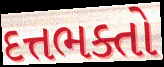
દત્તભક્તો